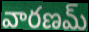
వారణమ్